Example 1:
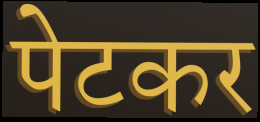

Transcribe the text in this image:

पेटकर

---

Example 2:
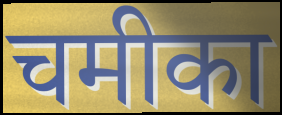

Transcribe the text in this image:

चमीका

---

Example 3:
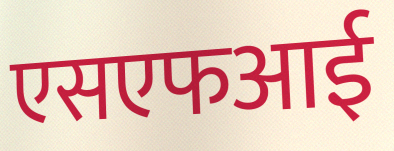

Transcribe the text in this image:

एसएफआई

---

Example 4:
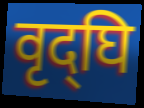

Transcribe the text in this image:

वृद्घि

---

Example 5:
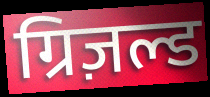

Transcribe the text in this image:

ग्रिज़ल्ड